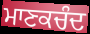
ਮਾਣਕਚੰਦ